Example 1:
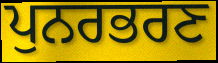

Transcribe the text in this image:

ਪੁਨਰਭਰਣ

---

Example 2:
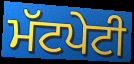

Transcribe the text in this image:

ਮੱਟਪੇਟੀ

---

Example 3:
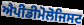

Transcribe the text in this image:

ਐਪੀਡੀਮੋਲੋਜਿਸਟ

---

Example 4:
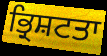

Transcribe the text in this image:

ਭ੍ਰਿਸ਼ਟਤਾ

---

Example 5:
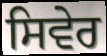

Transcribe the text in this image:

ਸਿਵੇਰ